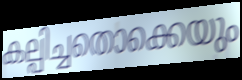
കല്പിച്ചതൊക്കെയും